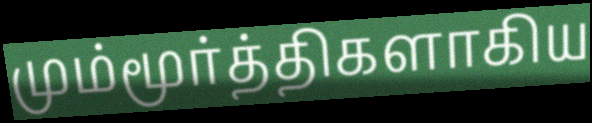
மும்மூர்த்திகளாகிய